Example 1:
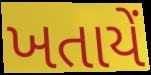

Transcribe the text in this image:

ખતાયેં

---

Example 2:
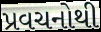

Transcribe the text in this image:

પ્રવચનોથી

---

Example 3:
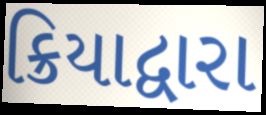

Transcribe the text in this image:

ક્રિયાદ્વારા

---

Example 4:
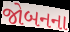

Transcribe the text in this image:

જોબનના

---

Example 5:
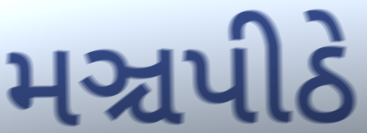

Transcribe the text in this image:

મઞ્ચપીઠે